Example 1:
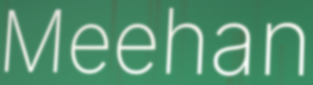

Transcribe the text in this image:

Meehan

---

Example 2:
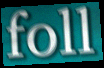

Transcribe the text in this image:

foll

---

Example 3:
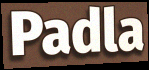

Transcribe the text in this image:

Padla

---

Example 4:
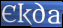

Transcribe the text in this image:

Ekda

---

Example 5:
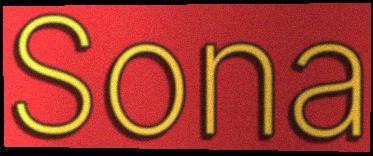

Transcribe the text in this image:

Sona